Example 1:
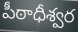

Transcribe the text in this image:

పీఠాధీశ్వర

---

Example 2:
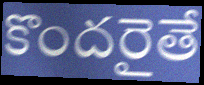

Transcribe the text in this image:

కొందరైతే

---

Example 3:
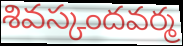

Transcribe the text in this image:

శివస్కందవర్మ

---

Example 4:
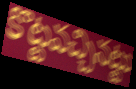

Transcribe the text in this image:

కొట్టవచ్చినట్టు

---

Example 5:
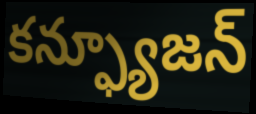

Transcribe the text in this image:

కన్ఫ్యూజన్